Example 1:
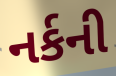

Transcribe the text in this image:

નર્કની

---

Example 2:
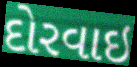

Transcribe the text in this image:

દોરવાઇ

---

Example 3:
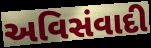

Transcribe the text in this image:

અવિસંવાદી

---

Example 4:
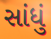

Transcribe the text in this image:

સાંધું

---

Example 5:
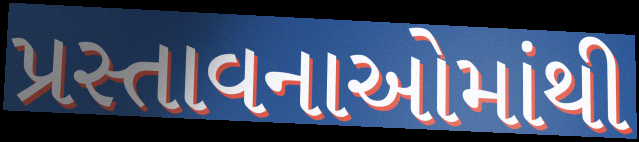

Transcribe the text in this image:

પ્રસ્તાવનાઓમાંથી